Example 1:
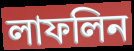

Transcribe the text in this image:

লাফলিন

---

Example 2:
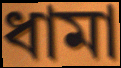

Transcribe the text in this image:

ধামা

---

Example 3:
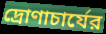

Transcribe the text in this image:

দ্রোণাচার্যের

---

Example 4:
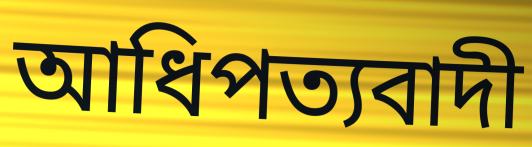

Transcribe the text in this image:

আধিপত্যবাদী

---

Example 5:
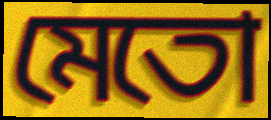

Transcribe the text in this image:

মেতো